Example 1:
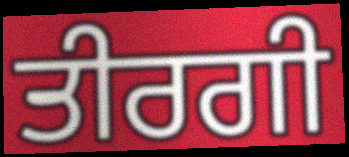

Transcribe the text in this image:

ਤੀਰਗੀ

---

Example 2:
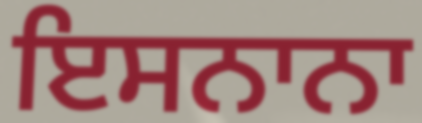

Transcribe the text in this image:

ਇਸਨਾਨਾ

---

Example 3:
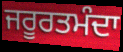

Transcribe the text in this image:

ਜਰੂਰਤਮੰਦਾ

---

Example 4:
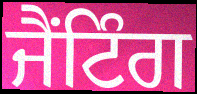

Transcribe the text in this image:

ਜੈਂਟਿੰਗ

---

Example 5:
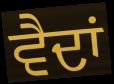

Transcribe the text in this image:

ਵੈਦਾਂ